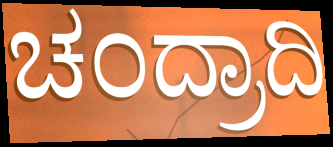
ಚಂದ್ರಾದಿ